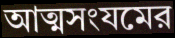
আত্মসংযমের